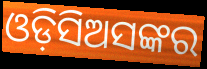
ଓଡ଼ିସିଅସଙ୍କର